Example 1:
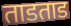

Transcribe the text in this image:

ताडताड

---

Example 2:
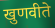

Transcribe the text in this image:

खुणवीते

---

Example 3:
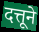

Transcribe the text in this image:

दत्तूने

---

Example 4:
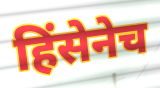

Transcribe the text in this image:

हिंसेनेच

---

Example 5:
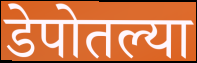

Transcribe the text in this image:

डेपोतल्या